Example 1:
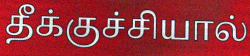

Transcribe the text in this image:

தீக்குச்சியால்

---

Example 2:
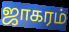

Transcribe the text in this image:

ஜாகரம்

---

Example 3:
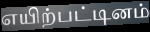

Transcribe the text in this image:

எயிற்பட்டினம்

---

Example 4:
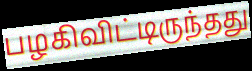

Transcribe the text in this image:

பழகிவிட்டிருந்தது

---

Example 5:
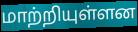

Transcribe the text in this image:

மாற்றியுள்ளன